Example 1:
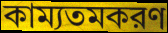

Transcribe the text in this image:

কাম্যতমকরণ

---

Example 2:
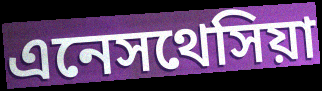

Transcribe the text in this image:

এনেসথেসিয়া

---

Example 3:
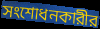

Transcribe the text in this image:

সংশোধনকারীর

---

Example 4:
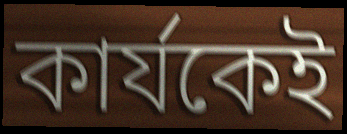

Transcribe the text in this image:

কার্যকেই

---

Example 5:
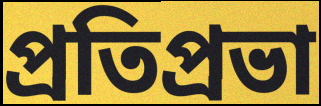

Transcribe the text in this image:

প্রতিপ্রভা